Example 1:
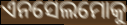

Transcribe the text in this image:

ଏନସେଲମୋକୁ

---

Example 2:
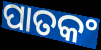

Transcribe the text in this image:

ପାତକଂ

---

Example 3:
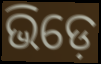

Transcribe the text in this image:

ଭିଡ଼େ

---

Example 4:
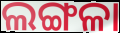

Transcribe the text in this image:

ଲଙ୍ଗଳା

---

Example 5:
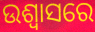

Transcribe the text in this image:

ଉଶ୍ଵାସରେ